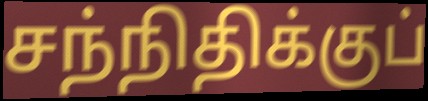
சந்நிதிக்குப்